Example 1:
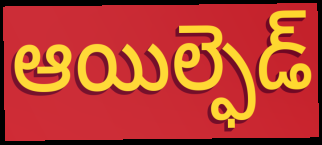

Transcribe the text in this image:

ఆయిల్ఫెడ్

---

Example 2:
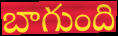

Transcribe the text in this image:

బాగుంది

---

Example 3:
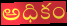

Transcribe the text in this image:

అధికం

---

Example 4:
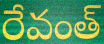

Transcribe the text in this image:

రేవంత్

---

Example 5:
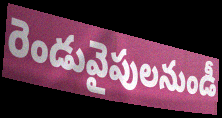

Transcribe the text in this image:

రెండువైపులనుండీ